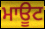
ਮਾਊਟ